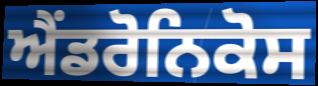
ਐਂਡਰੋਨਿਕੋਸ